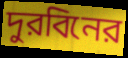
দুরবিনের